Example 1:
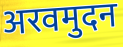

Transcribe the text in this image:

अरवमुदन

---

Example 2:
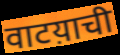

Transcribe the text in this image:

वाटय़ाची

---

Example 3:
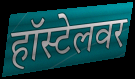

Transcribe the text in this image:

हॉस्टेलवर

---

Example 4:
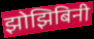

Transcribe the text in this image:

झोझिबिनी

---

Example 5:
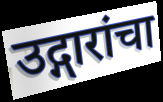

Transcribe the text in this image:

उद्गारांचा